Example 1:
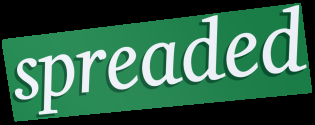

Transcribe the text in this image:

spreaded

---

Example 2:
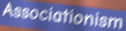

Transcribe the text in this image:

Associationism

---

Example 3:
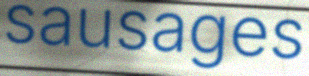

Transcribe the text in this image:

sausages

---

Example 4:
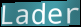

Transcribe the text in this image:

Lader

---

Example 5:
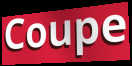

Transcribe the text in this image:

Coupe